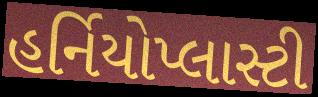
હર્નિયોપ્લાસ્ટી